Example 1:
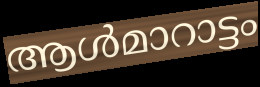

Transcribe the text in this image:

ആൾമാറാട്ടം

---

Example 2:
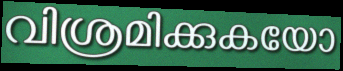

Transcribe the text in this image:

വിശ്രമിക്കുകയോ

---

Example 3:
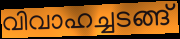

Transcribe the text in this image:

വിവാഹച്ചടങ്ങ്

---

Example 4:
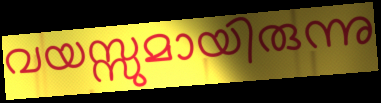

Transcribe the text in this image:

വയസ്സുമായിരുന്നു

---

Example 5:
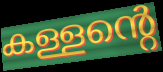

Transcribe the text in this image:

കള്ളന്റെ